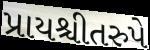
પ્રાયશ્ચીતરુપે